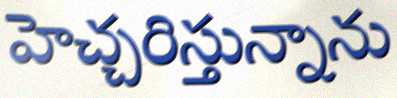
హెచ్చరిస్తున్నాను